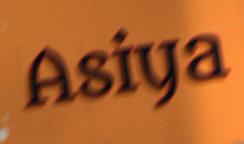
Asiya